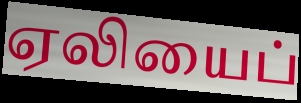
ஏலியைப்